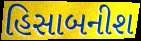
હિસાબનીશ